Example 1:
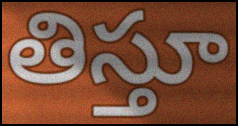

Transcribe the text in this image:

తిస్తూ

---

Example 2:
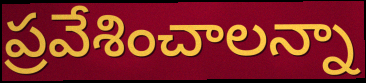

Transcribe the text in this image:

ప్రవేశించాలన్నా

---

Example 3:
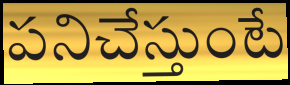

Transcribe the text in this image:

పనిచేస్తుంటే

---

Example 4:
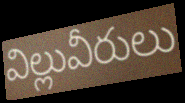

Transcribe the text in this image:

విల్లువీరులు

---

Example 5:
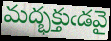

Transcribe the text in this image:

మద్భక్తుఁడవై